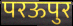
परऊपुर